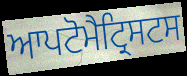
ਆਪਟੋਮੈਟ੍ਰਿਸਟਸ